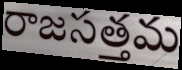
రాజసత్తమ